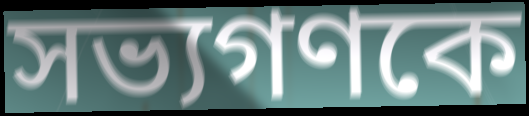
সভ্যগণকে